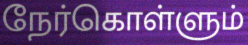
நேர்கொள்ளும்